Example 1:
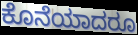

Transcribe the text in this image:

ಕೊನೆಯಾದರೂ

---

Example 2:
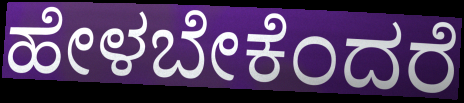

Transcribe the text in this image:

ಹೇಳಬೇಕೆಂದರೆ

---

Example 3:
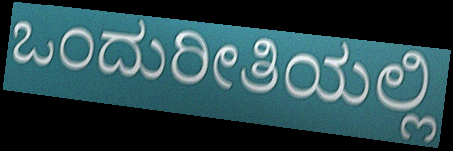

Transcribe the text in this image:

ಒಂದುರೀತಿಯಲ್ಲಿ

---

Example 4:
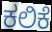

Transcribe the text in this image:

ಕಲಿಕೆ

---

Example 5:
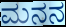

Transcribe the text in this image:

ಮನನ